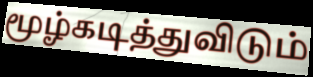
மூழ்கடித்துவிடும்